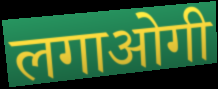
लगाओगी